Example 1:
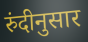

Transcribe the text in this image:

रुंदीनुसार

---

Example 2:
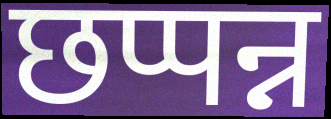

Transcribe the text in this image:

छप्पन्न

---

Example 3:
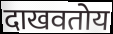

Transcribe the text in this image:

दाखवतोय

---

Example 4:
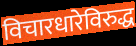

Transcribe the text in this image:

विचारधारेविरुद्ध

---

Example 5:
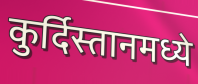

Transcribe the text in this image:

कुर्दिस्तानमध्ये